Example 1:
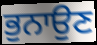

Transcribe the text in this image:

ਭੁਨਾਉਣ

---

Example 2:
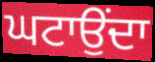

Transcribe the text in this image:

ਘਟਾਉਂਦਾ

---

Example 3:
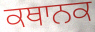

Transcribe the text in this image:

ਕਥਾਨਕ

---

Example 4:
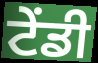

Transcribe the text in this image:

ਟੇਂਡੀ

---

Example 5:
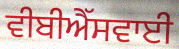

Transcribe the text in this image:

ਵੀਬੀਐੱਸਵਾਈ